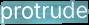
protrude